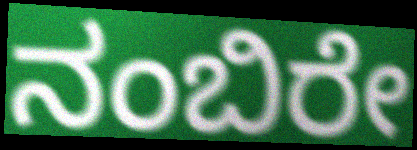
ನಂಬಿರೇ